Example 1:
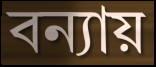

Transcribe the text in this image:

বন্যায়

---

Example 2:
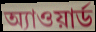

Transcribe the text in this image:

অ্যাওয়ার্ড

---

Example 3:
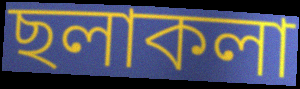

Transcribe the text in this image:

ছলাকলা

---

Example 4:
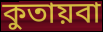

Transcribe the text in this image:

কুতায়বা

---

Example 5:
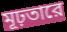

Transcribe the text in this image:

মূঢ়তারে